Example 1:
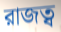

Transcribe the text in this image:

রাজত্ব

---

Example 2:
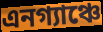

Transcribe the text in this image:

এনগ্যাঞ্চে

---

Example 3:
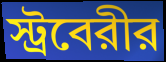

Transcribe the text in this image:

স্ট্রবেরীর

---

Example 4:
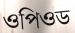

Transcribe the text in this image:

ওপিওড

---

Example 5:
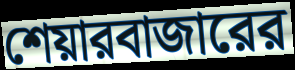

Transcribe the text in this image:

শেয়ারবাজারের